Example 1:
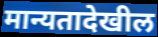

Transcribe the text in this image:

मान्यतादेखील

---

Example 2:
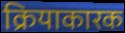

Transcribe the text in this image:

क्रियाकारक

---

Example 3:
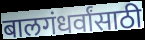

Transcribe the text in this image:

बालगंधर्वांसाठी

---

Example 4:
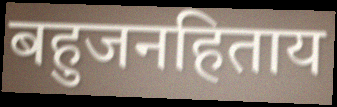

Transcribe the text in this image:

बहुजनहिताय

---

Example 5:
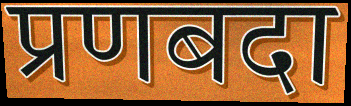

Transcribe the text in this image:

प्रणबदा